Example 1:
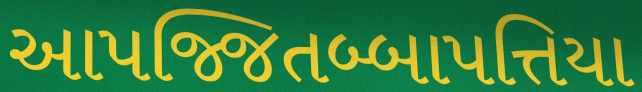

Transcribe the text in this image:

આપજ્જિતબ્બાપત્તિયા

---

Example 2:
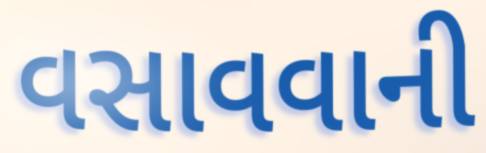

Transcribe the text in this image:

વસાવવાની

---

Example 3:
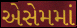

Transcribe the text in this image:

એસેમમાં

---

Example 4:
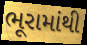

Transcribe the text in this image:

ભૂરામાંથી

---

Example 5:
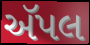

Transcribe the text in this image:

ઍપલ